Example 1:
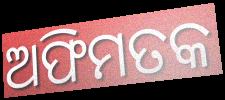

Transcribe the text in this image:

ଅଫିମତକ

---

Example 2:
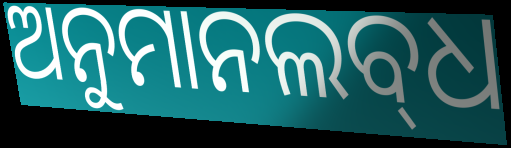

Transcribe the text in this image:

ଅନୁମାନଲବ୍‌ଧ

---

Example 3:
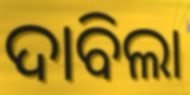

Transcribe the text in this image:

ଦାବିଲା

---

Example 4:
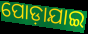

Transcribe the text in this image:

ପୋଡ଼ାଯାଇ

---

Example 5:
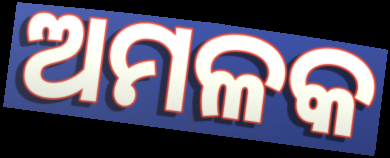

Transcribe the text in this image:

ଅମଳକ